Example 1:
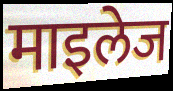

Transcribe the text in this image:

माइलेज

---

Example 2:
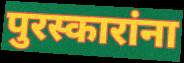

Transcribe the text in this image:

पुरस्कारांना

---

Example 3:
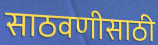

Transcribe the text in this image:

साठवणीसाठी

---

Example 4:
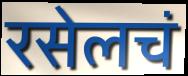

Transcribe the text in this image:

रसेलचं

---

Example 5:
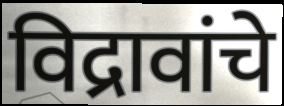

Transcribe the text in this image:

विद्रावांचे